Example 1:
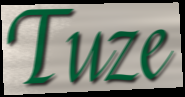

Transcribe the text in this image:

Tuze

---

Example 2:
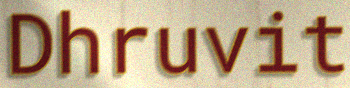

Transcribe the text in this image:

Dhruvit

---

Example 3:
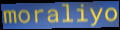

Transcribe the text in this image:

moraliyo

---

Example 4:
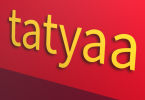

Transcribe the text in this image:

tatyaa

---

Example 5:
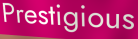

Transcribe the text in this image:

Prestigious